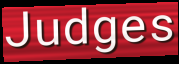
Judges